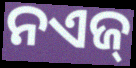
ନଏଜ୍